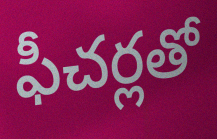
ఫీచర్లతో